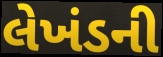
લેખંડની